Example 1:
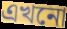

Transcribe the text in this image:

এখনো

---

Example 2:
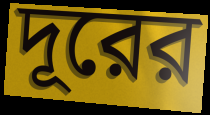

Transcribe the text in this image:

দূরের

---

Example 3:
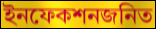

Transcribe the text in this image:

ইনফেকশনজনিত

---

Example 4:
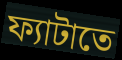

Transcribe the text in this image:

ফ্যাটাতে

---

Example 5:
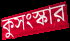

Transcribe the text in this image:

কুসংস্কার